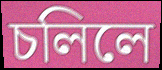
চলিলে